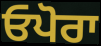
ਓਪੋਰਾ